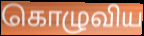
கொழுவிய